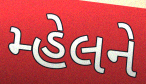
મ્હેલને